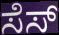
ಸೆಸ್